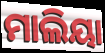
ମାଲିୟା